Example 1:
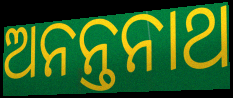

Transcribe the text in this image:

ଅନନ୍ତନାଥ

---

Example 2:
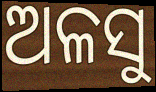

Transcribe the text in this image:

ଅଳସୁ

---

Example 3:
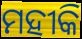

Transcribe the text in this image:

ମହୀକି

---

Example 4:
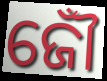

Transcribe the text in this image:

ଜୌଁ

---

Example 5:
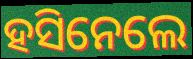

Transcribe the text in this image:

ହସିନେଲେ